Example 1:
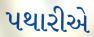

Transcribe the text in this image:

પથારીએ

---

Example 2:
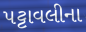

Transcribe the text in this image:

પટ્ટાવલીના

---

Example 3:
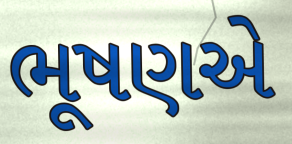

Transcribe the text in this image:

ભૂષણએ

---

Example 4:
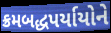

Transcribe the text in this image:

ક્રમબદ્ધપર્યાયોને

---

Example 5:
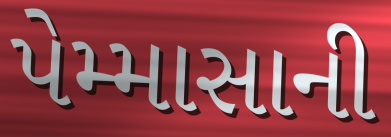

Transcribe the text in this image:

પેમ્માસાની